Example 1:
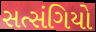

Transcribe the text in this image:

સત્સંગિયો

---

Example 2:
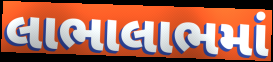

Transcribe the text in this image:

લાભાલાભમાં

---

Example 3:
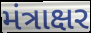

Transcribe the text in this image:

મંત્રાક્ષર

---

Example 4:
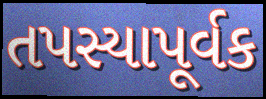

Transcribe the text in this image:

તપસ્યાપૂર્વક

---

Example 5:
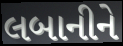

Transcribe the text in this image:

લબાનીને